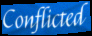
Conflicted